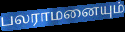
பலராமனையும்